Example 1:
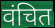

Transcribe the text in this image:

वंचित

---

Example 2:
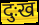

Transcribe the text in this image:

दुःख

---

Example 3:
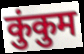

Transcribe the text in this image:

कुंकुम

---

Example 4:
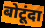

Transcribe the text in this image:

बोटूंदा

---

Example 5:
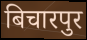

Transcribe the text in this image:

बिचारपुर